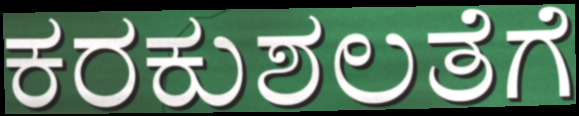
ಕರಕುಶಲತೆಗೆ